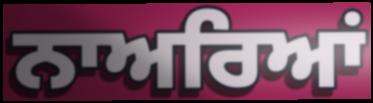
ਨਾਅਰਿਆਂ